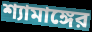
শ্যামাঙ্গের